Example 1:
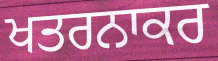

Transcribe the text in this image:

ਖਤਰਨਾਕਰ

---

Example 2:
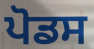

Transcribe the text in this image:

ਪੋਡਸ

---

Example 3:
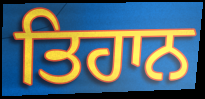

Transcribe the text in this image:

ਤਿਹਾਨ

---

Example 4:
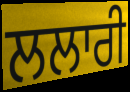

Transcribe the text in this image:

ਲਲਾਰੀ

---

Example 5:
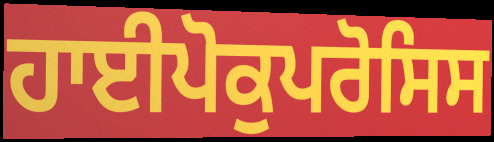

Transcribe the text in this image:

ਹਾਈਪੋਕੁਪਰੋਸਿਸ